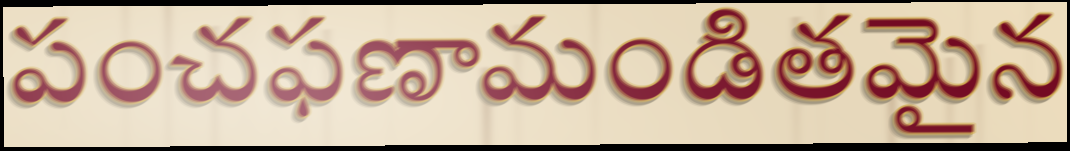
పంచఫణామండితమైన